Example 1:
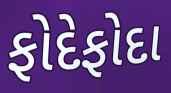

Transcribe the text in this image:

ફોદેફોદા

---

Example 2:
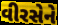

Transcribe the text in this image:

વીરસેને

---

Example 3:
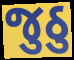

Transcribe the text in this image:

જુઠુ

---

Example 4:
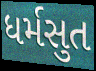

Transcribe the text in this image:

ધર્મસુત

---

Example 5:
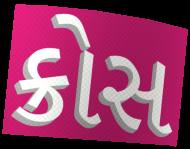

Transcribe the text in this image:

ક્રોસ